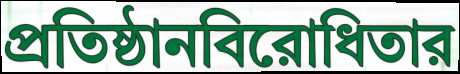
প্রতিষ্ঠানবিরোধিতার